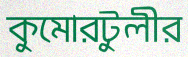
কুমোরটুলীর